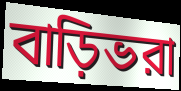
বাড়িভরা